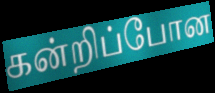
கன்றிப்போன